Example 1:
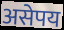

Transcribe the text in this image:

असेपय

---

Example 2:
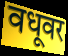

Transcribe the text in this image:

वधूवर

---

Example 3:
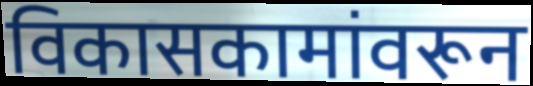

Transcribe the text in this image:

विकासकामांवरून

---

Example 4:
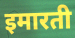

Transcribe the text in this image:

इमारती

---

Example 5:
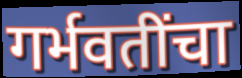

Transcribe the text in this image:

गर्भवतींचा